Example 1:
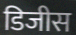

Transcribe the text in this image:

डिजीस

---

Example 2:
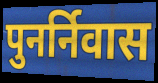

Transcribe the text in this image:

पुनर्निवास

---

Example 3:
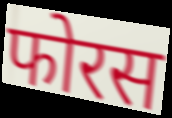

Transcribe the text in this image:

फोरस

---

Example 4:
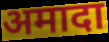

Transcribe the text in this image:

अमादा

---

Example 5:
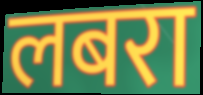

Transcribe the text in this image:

लबरा